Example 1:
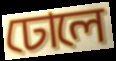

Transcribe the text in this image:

ঢোলে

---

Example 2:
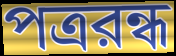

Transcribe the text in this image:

পত্ররন্ধ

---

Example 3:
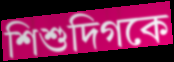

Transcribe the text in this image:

শিশুদিগকে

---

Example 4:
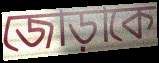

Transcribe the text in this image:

জোড়াকে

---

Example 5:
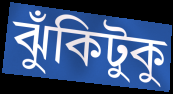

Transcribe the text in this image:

ঝুঁকিটুকু